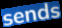
sends